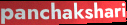
panchakshari